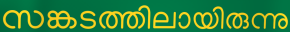
സങ്കടത്തിലായിരുന്നു